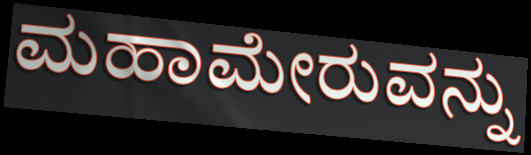
ಮಹಾಮೇರುವನ್ನು